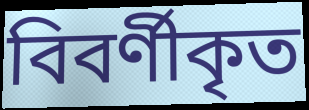
বিবর্ণীকৃত